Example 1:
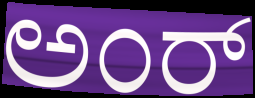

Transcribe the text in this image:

ಅಂರ್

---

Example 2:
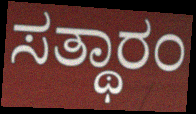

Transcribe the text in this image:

ಸತ್ಥಾರಂ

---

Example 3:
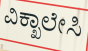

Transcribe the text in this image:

ವಿಕ್ಖಾಲೇಸಿ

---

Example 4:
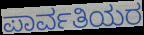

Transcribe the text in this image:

ಪಾರ್ವತಿಯರ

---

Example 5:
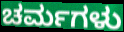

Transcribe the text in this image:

ಚರ್ಮಗಳು